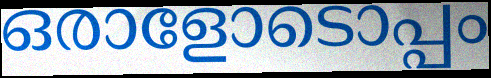
ഒരാളോടൊപ്പം